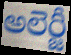
అలెర్జీ